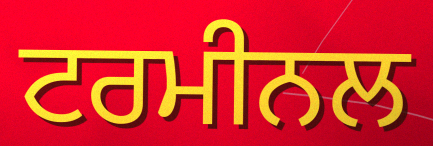
ਟਰਮੀਨਲ